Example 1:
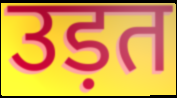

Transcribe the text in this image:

उड़त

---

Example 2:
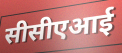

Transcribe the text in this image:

सीसीएआई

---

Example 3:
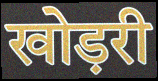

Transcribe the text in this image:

खोड़री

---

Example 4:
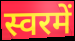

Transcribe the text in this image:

स्वरमें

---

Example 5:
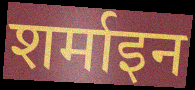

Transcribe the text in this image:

शर्माइन